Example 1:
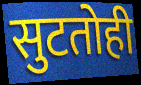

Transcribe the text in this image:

सुटतोही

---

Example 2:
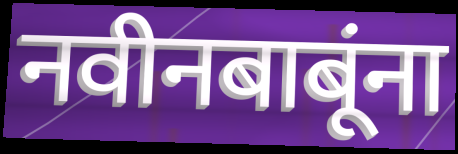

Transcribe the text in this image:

नवीनबाबूंना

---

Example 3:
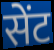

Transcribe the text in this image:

सेंट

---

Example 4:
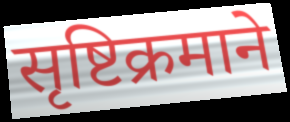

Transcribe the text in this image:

सृष्टिक्रमाने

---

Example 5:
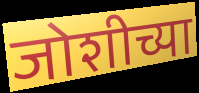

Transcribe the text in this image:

जोशीच्या